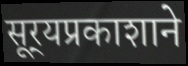
सूर्यप्रकाशाने